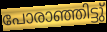
പോരാഞ്ഞിട്ടു്